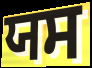
ਯਸ